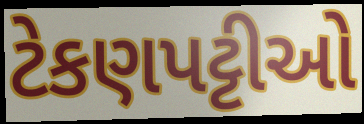
ટેકણપટ્ટીઓ